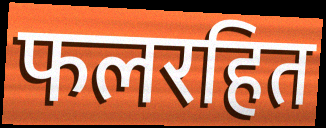
फलरहित